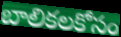
బాలికలకోసం